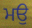
ਮਉ